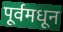
पूर्वमधून